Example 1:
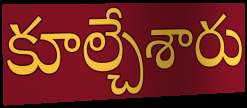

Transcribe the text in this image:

కూల్చేశారు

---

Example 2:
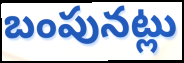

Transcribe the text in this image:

బంపునట్లు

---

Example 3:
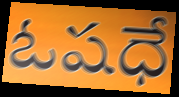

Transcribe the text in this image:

ఓషధే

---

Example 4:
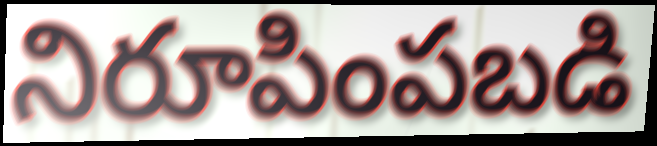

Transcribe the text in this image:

నిరూపింపబడి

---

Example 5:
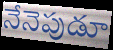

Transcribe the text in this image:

నేనెపుడూ